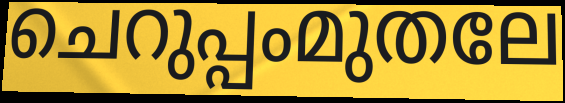
ചെറുപ്പംമുതലേ